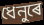
ধেনুৰে